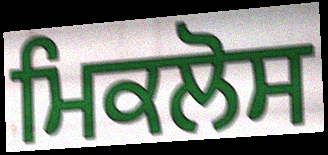
ਮਿਕਲੋਸ